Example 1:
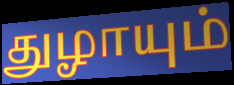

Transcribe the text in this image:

துழாயும்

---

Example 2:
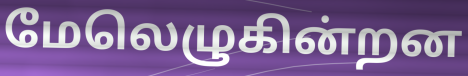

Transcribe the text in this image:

மேலெழுகின்றன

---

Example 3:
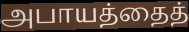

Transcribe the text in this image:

அபாயத்தைத்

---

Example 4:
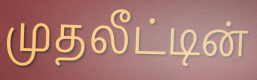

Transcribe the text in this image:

முதலீட்டின்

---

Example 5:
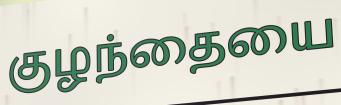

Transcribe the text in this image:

குழந்தையை